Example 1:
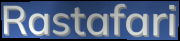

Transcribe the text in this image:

Rastafari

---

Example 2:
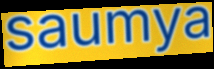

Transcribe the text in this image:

saumya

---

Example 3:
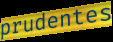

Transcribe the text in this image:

prudentes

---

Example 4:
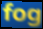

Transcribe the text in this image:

fog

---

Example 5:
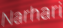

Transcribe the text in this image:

Narhari